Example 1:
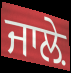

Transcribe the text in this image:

ਜਾਲ਼ੇ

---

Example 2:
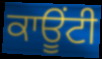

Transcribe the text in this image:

ਕਾਊਂਟੀ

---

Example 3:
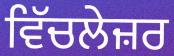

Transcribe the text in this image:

ਵਿੱਚਲੇਜ਼ਰ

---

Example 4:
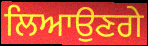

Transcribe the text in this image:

ਲਿਆਉਣਗੇ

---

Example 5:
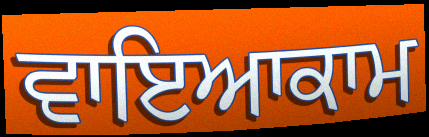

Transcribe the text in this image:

ਵਾਇਆਕਾਮ